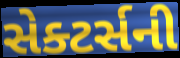
સેક્ટર્સની